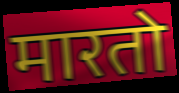
मारतो